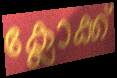
ക്ലോക്ക്